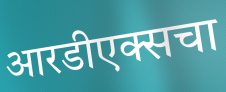
आरडीएक्सचा